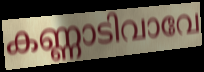
കണ്ണാടിവാവേ